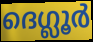
ദെഗ്ലൂർ